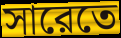
সারেতে